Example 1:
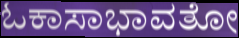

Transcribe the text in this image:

ಓಕಾಸಾಭಾವತೋ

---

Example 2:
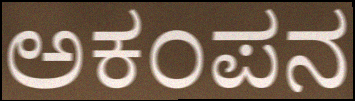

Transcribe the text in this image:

ಅಕಂಪನ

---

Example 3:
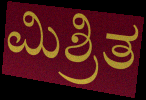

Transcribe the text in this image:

ಮಿಶ್ರಿತ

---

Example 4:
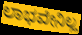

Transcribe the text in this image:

ಲಾಭವೇನಿಲ್ಲ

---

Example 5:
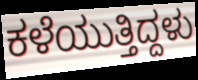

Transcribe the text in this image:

ಕಳೆಯುತ್ತಿದ್ದಳು